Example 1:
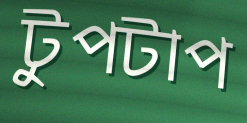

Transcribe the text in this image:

টুপটাপ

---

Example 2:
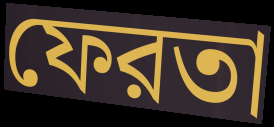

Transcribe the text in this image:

ফেরতা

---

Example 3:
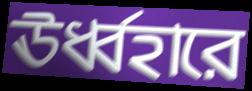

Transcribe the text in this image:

ঊর্ধ্বহারে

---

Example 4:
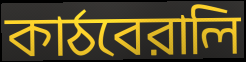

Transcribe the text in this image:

কাঠবেরালি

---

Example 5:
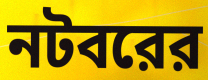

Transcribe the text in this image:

নটবরের